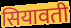
सियावती